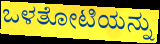
ಒಳತೋಟಿಯನ್ನು